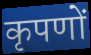
कृपणों